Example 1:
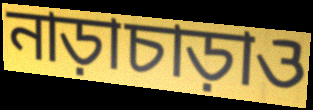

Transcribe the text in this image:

নাড়াচাড়াও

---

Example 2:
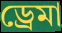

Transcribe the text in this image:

ড্রেমা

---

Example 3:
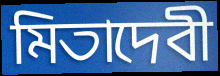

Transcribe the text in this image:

মিতাদেবী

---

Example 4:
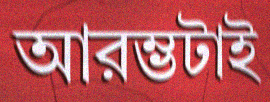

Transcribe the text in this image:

আরম্ভটাই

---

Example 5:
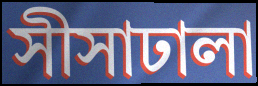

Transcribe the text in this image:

সীসাঢালা